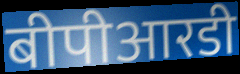
बीपीआरडी